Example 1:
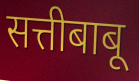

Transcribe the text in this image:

सत्तीबाबू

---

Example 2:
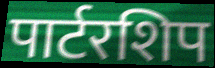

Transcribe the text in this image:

पार्टरशिप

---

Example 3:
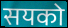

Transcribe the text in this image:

सयको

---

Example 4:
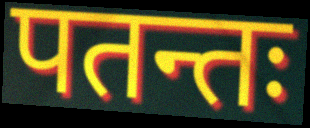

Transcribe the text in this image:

पतन्तः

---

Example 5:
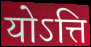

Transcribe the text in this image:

योऽत्ति